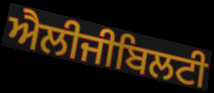
ਐਲੀਜੀਬਿਲਟੀ